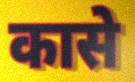
कासे